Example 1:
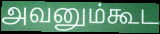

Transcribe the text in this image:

அவனும்கூட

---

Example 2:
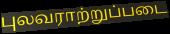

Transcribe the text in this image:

புலவராற்றுப்படை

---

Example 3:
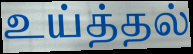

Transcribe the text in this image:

உய்த்தல்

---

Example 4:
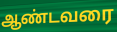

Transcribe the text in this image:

ஆண்டவரை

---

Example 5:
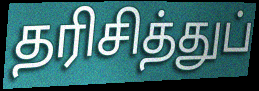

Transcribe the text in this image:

தரிசித்துப்